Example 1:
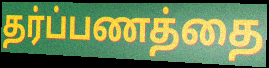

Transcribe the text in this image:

தர்ப்பணத்தை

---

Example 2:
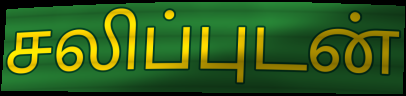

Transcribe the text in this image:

சலிப்புடன்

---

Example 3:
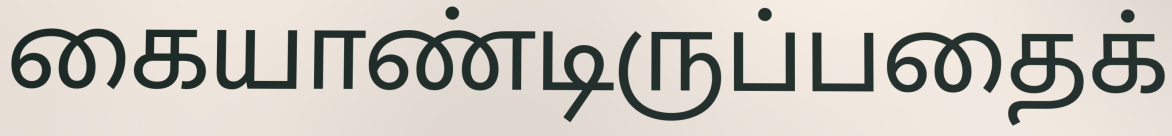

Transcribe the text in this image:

கையாண்டிருப்பதைக்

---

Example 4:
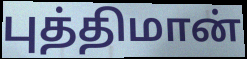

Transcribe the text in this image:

புத்திமான்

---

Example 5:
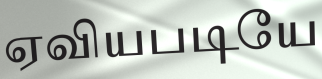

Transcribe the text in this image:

ஏவியபடியே